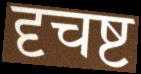
दृचष्ट